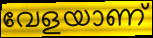
വേളയാണ്